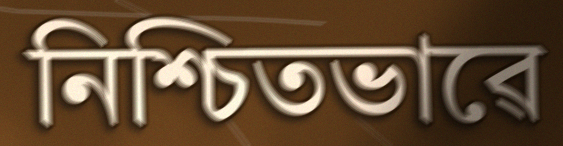
নিশ্চিতভাৱে